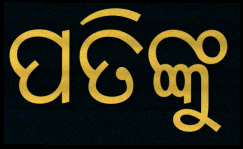
ପତିଙ୍କୁ